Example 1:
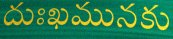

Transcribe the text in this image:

దుఃఖమునకు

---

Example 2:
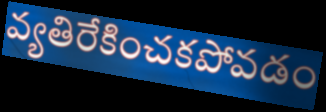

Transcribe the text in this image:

వ్యతిరేకించకపోవడం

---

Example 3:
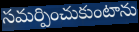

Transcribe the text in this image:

సమర్పించుకుంటాను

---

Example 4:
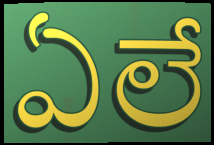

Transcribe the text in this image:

ఏలే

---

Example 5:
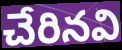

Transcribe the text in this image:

చేరినవి